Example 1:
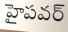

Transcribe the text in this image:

హైపవర్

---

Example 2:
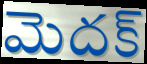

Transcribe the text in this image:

మెదక్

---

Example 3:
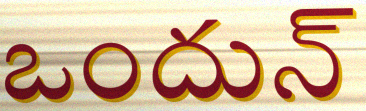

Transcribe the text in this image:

ఒందున్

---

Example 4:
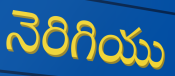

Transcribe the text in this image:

నెరిగియు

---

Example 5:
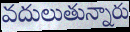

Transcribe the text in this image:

వదులుతున్నారు